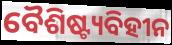
ବୈଶିଷ୍ଟ୍ୟବିହୀନ